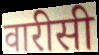
वारीसी